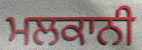
ਮਲਕਾਨੀ